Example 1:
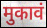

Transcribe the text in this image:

मुकावं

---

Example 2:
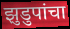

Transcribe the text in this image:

झुडुपांचा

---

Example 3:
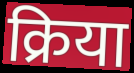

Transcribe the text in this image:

क्रिया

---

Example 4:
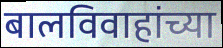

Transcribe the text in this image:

बालविवाहांच्या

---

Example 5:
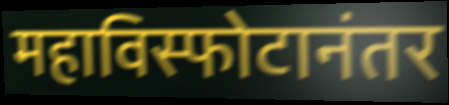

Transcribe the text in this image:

महाविस्फोटानंतर